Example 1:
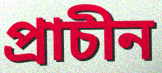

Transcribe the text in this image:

প্রাচীন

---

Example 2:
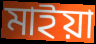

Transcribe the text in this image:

মাইয়া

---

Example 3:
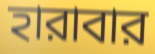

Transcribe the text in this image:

হারাবার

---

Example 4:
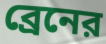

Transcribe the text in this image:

ব্রেনের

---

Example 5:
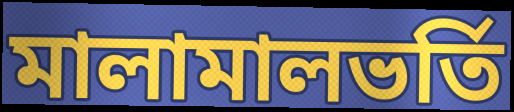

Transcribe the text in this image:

মালামালভর্তি